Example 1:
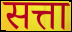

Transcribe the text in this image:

सत्ता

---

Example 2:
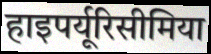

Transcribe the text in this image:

हाइपर्यूरिसीमिया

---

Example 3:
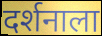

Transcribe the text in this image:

दर्शनाला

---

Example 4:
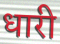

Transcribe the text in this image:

धारी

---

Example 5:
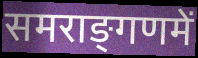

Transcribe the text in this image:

समराङ्गणमें